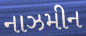
નાઝમીન